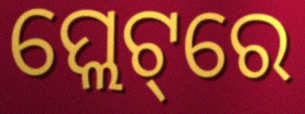
ପ୍ଲେଟ୍‌ରେ